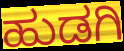
ಹುಡಗಿ